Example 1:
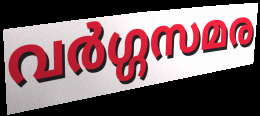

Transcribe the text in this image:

വർഗ്ഗസമര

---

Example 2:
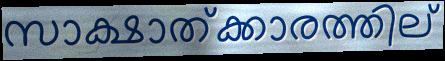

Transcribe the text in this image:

സാക്ഷാത്ക്കാരത്തില്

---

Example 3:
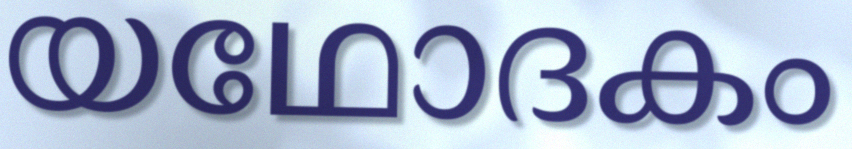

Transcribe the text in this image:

യഥോദകം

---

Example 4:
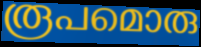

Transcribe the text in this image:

രൂപമൊരു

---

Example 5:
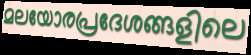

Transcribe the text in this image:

മലയോരപ്രദേശങ്ങളിലെ